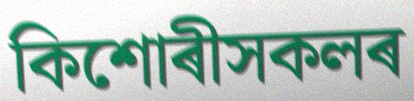
কিশোৰীসকলৰ